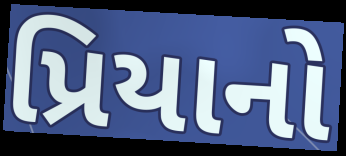
પ્રિયાનો